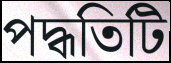
পদ্ধতিটি